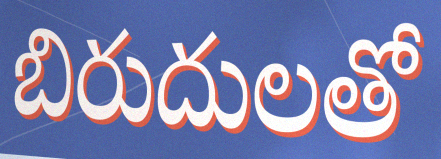
బిరుదులతో